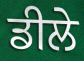
ਡੀਲੇ